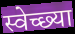
स्वेच्छ्या